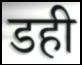
डही